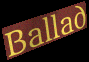
Ballad